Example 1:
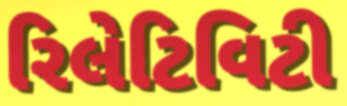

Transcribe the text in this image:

રિલેટિવિટી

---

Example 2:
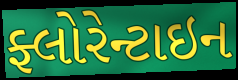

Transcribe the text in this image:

ફ્લોરેન્ટાઇન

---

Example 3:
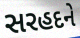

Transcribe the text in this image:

સરહદને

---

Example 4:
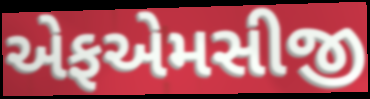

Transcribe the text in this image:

એફએમસીજી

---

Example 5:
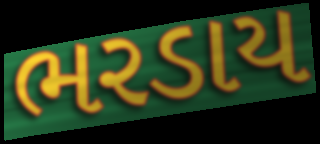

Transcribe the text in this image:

ભરડાય